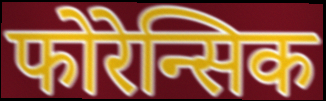
फोरेन्सिक